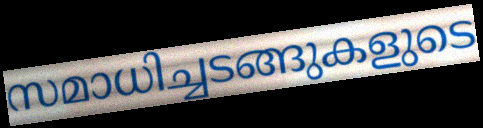
സമാധിച്ചടങ്ങുകളുടെ